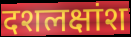
दशलक्षांश